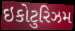
ઇકોટુરિઝમ